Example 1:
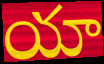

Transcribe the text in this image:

యా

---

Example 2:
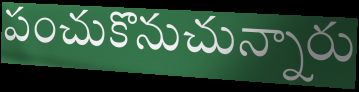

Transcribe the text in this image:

పంచుకొనుచున్నారు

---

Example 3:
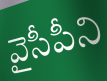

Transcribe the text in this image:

వైసీపీని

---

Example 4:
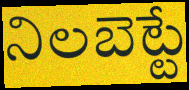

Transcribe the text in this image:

నిలబెట్టే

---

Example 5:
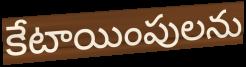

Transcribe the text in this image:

కేటాయింపులను